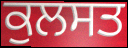
ਕੁਲਸਤ